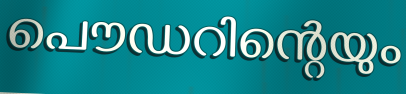
പൌഡറിന്റെയും